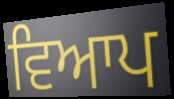
ਵਿਆਪ